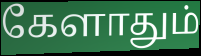
கேளாதும்